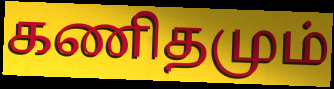
கணிதமும்